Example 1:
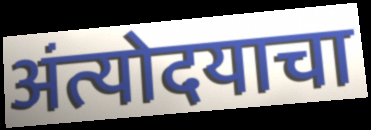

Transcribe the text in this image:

अंत्योदयाचा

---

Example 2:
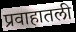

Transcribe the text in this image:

प्रवाहातली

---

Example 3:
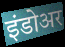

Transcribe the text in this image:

इंडोअर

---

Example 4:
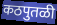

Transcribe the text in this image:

कठपुतळी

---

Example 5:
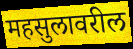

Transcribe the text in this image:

महसुलावरील